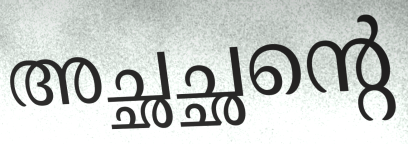
അച്ഛച്ഛന്റെ